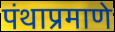
पंथाप्रमाणे